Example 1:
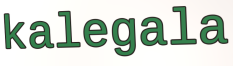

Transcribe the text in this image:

kalegala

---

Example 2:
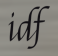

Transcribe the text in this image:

idf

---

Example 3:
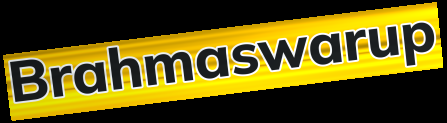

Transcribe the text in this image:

Brahmaswarup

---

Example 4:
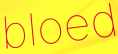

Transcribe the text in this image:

bloed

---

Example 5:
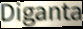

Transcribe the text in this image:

Diganta